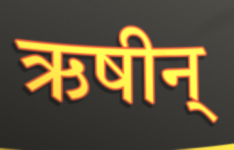
ऋषीन्